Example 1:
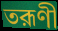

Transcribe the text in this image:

তরূণী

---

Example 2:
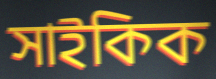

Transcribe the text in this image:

সাইকিক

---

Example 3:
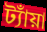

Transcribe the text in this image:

ট্যাঁয়া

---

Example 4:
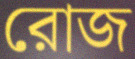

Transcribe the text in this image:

রোজ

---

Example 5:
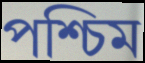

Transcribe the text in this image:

পশ্চিম